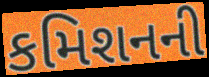
કમિશનની